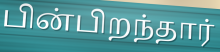
பின்பிறந்தார்